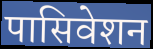
पासिवेशन